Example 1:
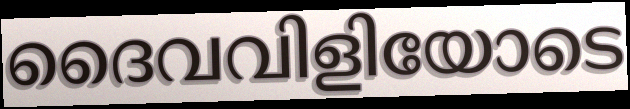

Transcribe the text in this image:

ദൈവവിളിയോടെ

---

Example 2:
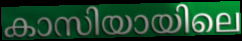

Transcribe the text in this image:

കാസിയായിലെ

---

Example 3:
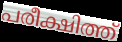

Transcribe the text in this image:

പരീക്ഷിത്ത്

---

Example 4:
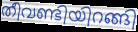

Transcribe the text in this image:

തീവണ്ടിയിറങ്ങി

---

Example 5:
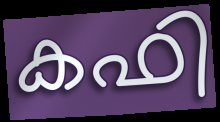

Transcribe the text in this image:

കഫി